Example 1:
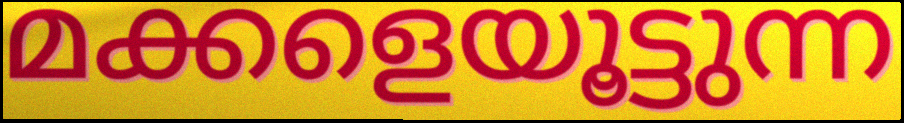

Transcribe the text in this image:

മക്കളെയൂട്ടുന്ന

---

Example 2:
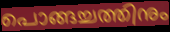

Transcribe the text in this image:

പൊങ്ങച്ചത്തിനും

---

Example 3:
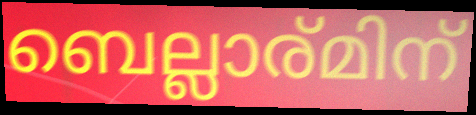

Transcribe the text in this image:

ബെല്ലാര്മിന്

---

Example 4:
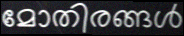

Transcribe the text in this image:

മോതിരങ്ങൾ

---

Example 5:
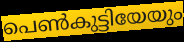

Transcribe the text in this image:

പെൺകുട്ടിയേയും